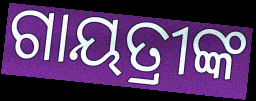
ଗାୟତ୍ରୀଙ୍କ